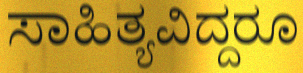
ಸಾಹಿತ್ಯವಿದ್ದರೂ